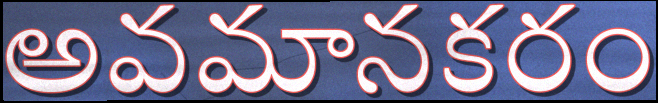
అవమానకరం